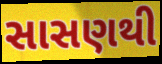
સાસણથી